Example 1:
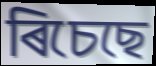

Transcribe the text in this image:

ৰিচেছে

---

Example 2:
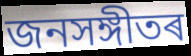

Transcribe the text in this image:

জনসঙ্গীতৰ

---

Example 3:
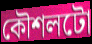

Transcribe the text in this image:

কৌশলটো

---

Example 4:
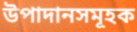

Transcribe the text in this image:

উপাদানসমূহক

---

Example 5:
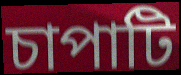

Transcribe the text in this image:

চাপাটি